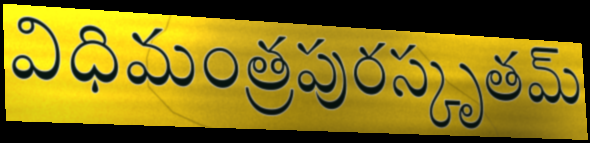
విధిమంత్రపురస్కృతమ్